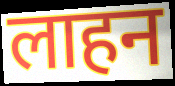
लाहन